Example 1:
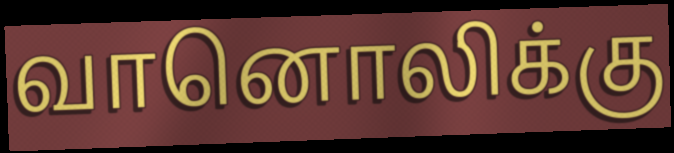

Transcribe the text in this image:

வானொலிக்கு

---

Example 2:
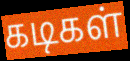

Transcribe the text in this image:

கடிகள்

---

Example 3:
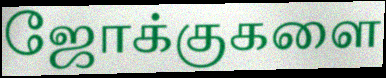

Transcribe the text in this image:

ஜோக்குகளை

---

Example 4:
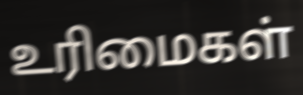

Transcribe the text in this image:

உரிமைகள்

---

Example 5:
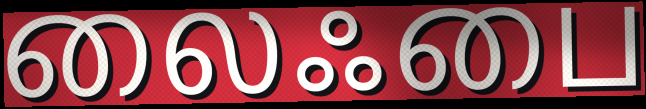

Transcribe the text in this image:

லைஃபை